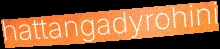
hattangadyrohini